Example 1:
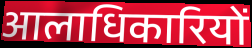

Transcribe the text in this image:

आलाधिकारियों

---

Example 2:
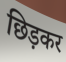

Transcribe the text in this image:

छिड़कर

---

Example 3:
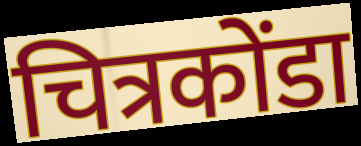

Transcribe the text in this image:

चित्रकोंडा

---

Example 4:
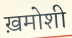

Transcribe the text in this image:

ख़मोशी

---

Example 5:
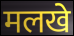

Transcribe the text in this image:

मलखे